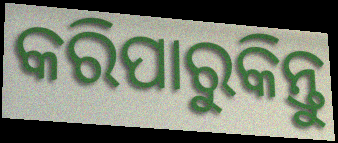
କରିପାରୁକିନ୍ତୁ